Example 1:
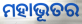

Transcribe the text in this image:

ମହାଭୂତର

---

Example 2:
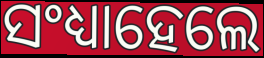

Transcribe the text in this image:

ସଂଧ୍ୟାହେଲେ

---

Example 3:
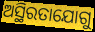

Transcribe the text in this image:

ଅସ୍ଥିରତାଯୋଗୁ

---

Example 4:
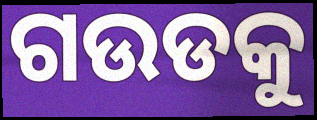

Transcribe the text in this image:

ଗଉଡକୁ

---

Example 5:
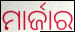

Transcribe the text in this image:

ମାର୍ଜାର